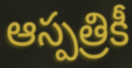
ఆస్పత్రికీ